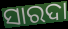
ସାରଦା